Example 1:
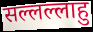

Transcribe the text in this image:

सल्लल्लाहु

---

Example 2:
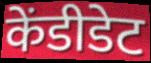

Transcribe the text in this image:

केंडीडेट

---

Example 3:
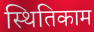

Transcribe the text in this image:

स्थितिकाम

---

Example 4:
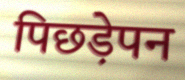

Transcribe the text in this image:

पिछड़ेपन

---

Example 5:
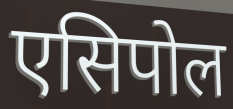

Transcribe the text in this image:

एसिपोल